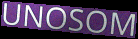
UNOSOM